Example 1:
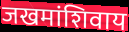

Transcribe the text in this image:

जखमांशिवाय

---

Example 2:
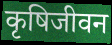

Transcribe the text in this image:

कृषिजीवन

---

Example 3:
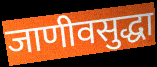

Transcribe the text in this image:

जाणीवसुद्धा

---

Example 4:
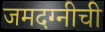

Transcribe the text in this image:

जमदग्नीची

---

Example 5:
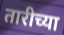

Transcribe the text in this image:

तारीच्या